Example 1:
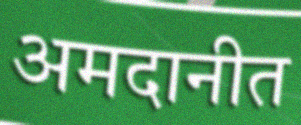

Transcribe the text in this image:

अमदानीत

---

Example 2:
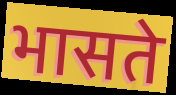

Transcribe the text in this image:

भासते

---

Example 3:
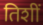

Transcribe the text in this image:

तिशीं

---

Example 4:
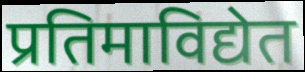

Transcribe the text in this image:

प्रतिमाविद्येत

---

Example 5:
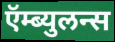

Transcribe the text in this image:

ऍम्ब्युलन्स